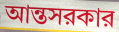
আন্তসরকার